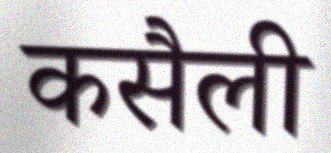
कसैली